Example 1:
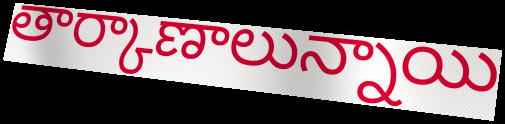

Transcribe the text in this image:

తార్కాణాలున్నాయి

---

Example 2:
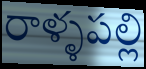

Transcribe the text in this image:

రాళ్ళపల్లి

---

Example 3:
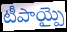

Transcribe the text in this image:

టీపాయ్పై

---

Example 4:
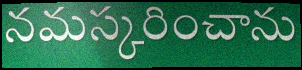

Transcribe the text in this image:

నమస్కరించాను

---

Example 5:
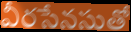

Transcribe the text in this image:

వీరసేనసుతో